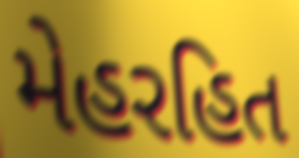
મેહરહિત